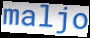
maljo